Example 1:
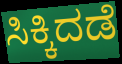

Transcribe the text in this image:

ಸಿಕ್ಕಿದಡೆ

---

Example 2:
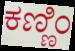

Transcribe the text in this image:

ಕಣ್ಣಿಂ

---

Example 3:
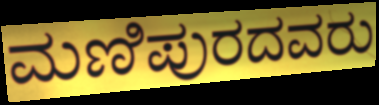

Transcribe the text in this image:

ಮಣಿಪುರದವರು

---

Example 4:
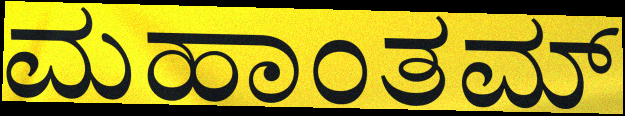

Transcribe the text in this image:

ಮಹಾಂತಮ್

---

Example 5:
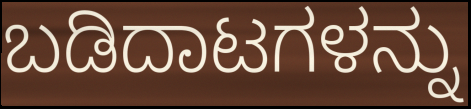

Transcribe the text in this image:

ಬಡಿದಾಟಗಳನ್ನು